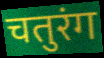
चतुरंग